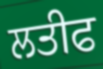
ਲਤੀਫ